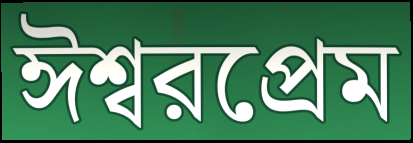
ঈশ্বরপ্রেম